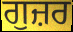
ਗੁਜ਼ਰ